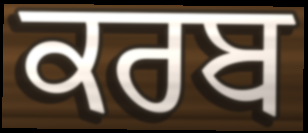
ਕਰਬ